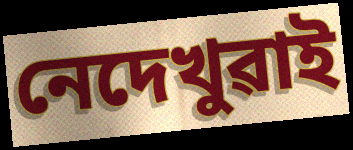
নেদেখুৱাই